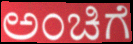
ಅಂಚಿಗೆ